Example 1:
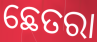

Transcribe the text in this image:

ଛେତରା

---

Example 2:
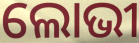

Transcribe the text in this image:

ଲୋଭୀ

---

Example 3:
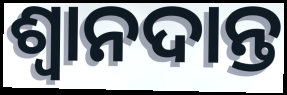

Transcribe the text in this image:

ଶ୍ଵାନଦାନ୍ତ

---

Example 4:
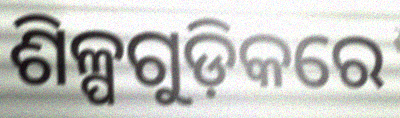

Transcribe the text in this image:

ଶିଳ୍ପଗୁଡ଼ିକରେ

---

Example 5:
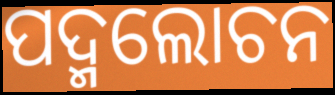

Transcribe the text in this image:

ପଦ୍ମଲୋଚନ